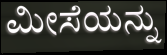
ಮೀಸೆಯನ್ನು